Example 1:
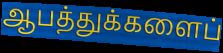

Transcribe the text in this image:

ஆபத்துக்களைப்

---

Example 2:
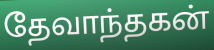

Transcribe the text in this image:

தேவாந்தகன்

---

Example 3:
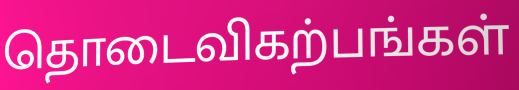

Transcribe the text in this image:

தொடைவிகற்பங்கள்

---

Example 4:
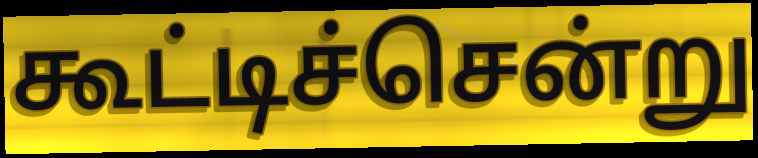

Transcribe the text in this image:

கூட்டிச்சென்று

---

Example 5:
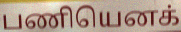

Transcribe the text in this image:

பணியெனக்